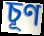
চূণ